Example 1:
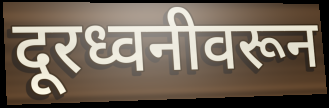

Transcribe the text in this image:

दूरध्वनीवरून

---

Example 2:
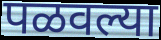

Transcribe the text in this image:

पळवल्या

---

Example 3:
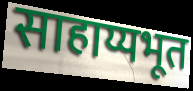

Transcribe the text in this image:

साहाय्यभूत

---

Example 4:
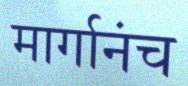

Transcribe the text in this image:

मार्गानंच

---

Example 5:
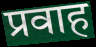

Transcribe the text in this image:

प्रवाह